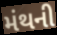
મંથની